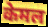
केमल